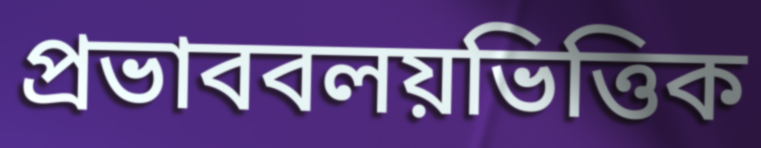
প্রভাববলয়ভিত্তিক